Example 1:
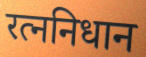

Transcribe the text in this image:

रत्ननिधान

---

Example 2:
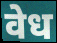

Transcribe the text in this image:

वेध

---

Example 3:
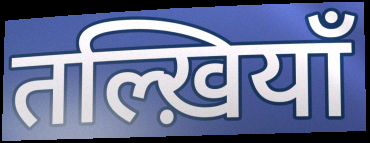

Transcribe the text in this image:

तल्ख़ियाँ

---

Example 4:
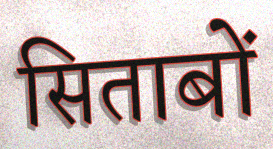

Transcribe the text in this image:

सिताबों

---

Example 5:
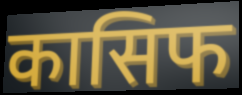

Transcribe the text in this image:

कासिफ